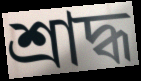
শ্ৰাদ্ধ